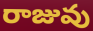
రాజువు